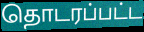
தொடரப்பட்ட